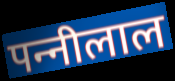
पन्नीलाल